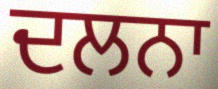
ਦਲਨਾ